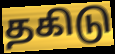
தகிடு